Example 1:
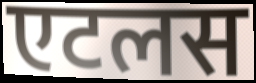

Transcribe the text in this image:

एटलस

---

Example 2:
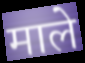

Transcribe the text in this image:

माले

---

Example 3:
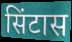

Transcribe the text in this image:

सिंटास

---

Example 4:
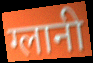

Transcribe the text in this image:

ग्लानी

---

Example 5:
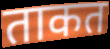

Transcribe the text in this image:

ताकत